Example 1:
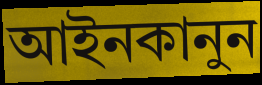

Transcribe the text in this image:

আইনকানুন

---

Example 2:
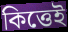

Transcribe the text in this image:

কিত্তেই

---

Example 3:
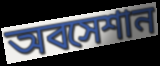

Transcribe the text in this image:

অবসেশান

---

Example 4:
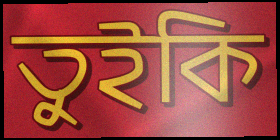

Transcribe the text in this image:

তুইকি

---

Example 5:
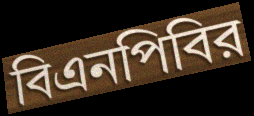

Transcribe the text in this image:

বিএনপিবির